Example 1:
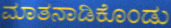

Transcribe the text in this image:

ಮಾತನಾಡಿಕೊಂಡು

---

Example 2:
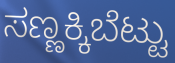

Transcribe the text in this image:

ಸಣ್ಣಕ್ಕಿಬೆಟ್ಟು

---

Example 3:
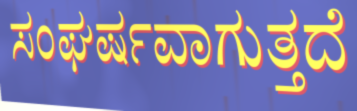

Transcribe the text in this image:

ಸಂಘರ್ಷವಾಗುತ್ತದೆ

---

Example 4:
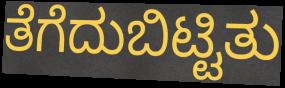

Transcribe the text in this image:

ತೆಗೆದುಬಿಟ್ಟಿತು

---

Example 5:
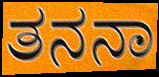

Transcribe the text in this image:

ತನನಾ